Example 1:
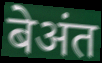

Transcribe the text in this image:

बेअंत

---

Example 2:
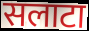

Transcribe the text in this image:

सलाटा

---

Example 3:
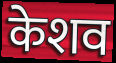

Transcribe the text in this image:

केशव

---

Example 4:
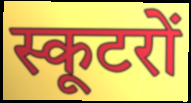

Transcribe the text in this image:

स्कूटरों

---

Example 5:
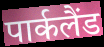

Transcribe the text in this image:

पार्कलैंड